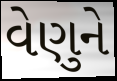
વેણુને